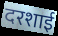
दरशाई